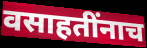
वसाहतींनाच